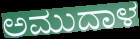
ಅಮುದಾಳ